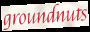
groundnuts